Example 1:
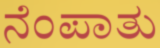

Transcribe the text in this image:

ನೆಂಪಾತು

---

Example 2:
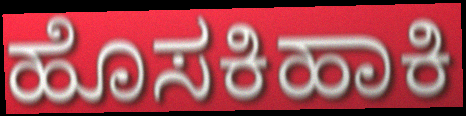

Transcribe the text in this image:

ಹೊಸಕಿಹಾಕಿ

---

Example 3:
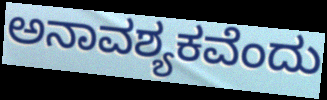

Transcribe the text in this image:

ಅನಾವಶ್ಯಕವೆಂದು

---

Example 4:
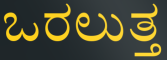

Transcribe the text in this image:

ಒರಲುತ್ತ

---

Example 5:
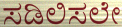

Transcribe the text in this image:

ಸಡಿಲಿಸಲೇ